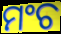
ମଂଚ